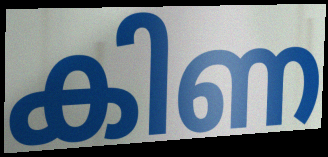
കിണ